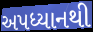
અપધ્યાનથી